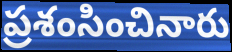
ప్రశంసించినారు